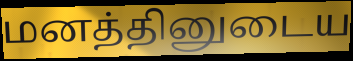
மனத்தினுடைய